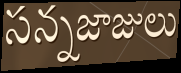
సన్నజాజులు